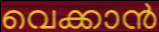
വെക്കാൻ